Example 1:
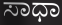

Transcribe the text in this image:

ಸಾಧಾ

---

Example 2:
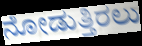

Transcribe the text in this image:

ನೋಡುತ್ತಿರಲು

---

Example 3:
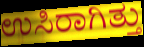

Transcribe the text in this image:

ಉಸಿರಾಗಿತ್ತು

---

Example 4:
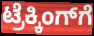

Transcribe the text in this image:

ಟ್ರೆಕ್ಕಿಂಗ್‌ಗೆ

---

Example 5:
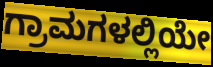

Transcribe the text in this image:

ಗ್ರಾಮಗಳಲ್ಲಿಯೇ